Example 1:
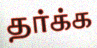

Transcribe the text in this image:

தர்க்க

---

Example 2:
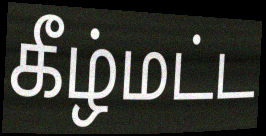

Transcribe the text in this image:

கீழ்மட்ட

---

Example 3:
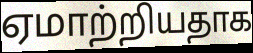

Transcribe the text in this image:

ஏமாற்றியதாக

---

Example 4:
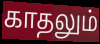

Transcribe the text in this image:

காதலும்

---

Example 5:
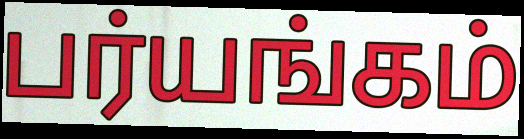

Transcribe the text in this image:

பர்யங்கம்